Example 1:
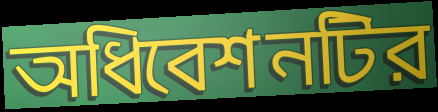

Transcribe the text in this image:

অধিবেশনটির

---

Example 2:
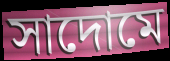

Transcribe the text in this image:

সাদোমে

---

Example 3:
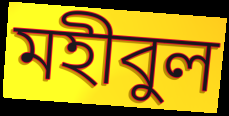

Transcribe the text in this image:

মহীবুল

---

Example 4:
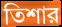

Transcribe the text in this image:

তিশার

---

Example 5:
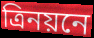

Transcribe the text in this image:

ত্রিনয়নে